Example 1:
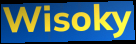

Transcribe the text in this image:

Wisoky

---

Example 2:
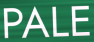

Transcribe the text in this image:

PALE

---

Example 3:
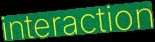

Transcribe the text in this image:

interaction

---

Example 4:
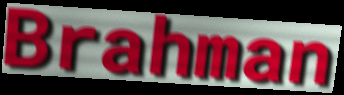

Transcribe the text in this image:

Brahman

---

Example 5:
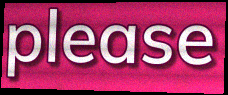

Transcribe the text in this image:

please